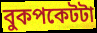
বুকপকেটটা